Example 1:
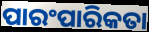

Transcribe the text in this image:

ପାରଂପାରିକତା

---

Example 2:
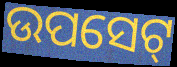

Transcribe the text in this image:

ଉପସେଟ୍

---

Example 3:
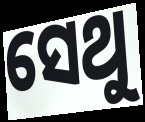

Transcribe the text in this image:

ସେଥୁ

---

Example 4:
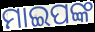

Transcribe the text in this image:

ମାଇପଙ୍କ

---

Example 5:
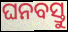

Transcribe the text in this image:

ଘନବସ୍ତୁ